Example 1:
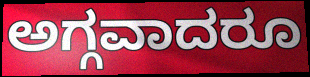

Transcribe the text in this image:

ಅಗ್ಗವಾದರೂ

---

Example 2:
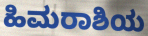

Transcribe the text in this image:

ಹಿಮರಾಶಿಯ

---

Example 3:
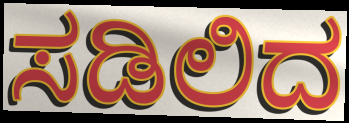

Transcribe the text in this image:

ಸಡಿಲಿದ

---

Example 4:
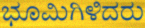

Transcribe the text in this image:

ಭೂಮಿಗಿಳಿದರು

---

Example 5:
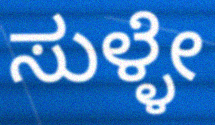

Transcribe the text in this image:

ಸುಳ್ಳೇ